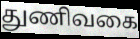
துணிவகை